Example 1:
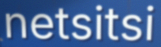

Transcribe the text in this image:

netsitsi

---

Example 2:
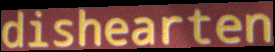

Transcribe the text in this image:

dishearten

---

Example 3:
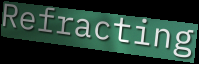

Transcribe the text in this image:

Refracting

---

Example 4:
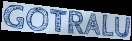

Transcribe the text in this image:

GOTRALU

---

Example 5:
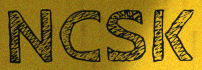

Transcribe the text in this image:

NCSK